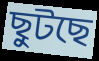
ছুটছে